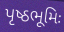
પૃષ્ઠભૂમિઃ